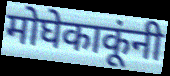
मोघेकाकूंनी